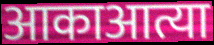
आकाआत्या